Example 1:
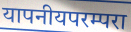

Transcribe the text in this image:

यापनीयपरम्परा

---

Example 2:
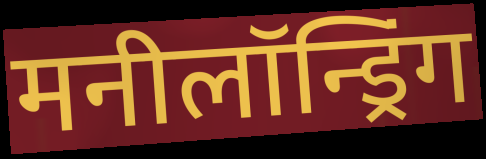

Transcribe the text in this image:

मनीलॉन्ड्रिंग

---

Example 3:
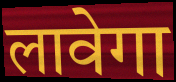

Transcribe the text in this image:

लावेगा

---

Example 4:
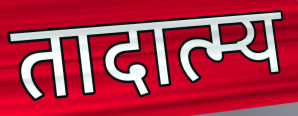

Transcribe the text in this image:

तादात्म्य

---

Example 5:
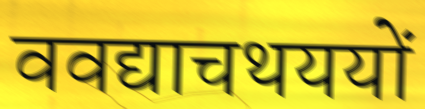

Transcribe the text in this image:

ववद्याचथययों